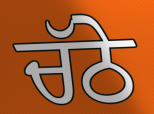
ਚੱਠੇ